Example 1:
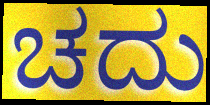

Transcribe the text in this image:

ಚದು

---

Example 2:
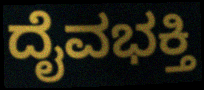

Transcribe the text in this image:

ದೈವಭಕ್ತಿ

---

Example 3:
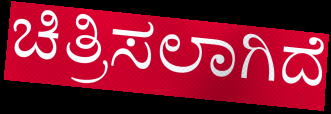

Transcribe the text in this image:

ಚಿತ್ರಿಸಲಾಗಿದೆ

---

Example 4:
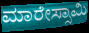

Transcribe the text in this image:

ಮಾರೇಸ್ಸಾಮಿ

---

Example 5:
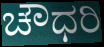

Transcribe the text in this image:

ಚೌಧರಿ